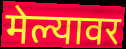
मेल्यावर